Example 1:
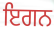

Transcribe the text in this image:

ਇਗਨ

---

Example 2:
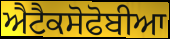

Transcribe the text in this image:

ਐਟੈਕਸੋਫੋਬੀਆ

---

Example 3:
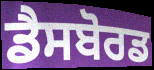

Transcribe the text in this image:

ਡੈਸਬੋਰਡ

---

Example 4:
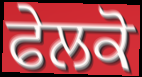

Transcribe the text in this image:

ਫੇਲਕੋ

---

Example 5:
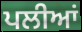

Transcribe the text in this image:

ਪਲੀਆਂ